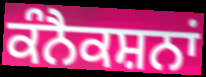
ਕੰਨੈਕਸ਼ਨਾਂ